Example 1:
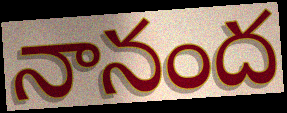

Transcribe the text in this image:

నానంద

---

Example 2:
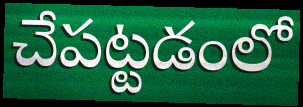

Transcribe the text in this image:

చేపట్టడంలో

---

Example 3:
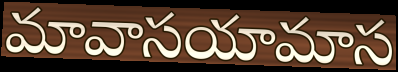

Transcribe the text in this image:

మావాసయామాస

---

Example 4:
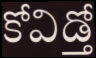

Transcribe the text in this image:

కోవిడ్తో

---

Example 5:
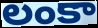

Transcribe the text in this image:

లంకా